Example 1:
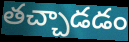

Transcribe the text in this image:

తచ్చాడడం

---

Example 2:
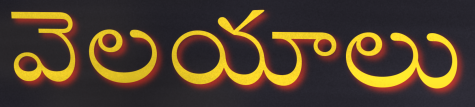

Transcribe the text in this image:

వెలయాలు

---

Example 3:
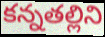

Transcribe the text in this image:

కన్నతల్లిని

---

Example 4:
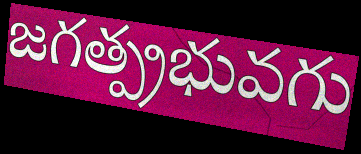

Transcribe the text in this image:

జగత్ప్రభువగు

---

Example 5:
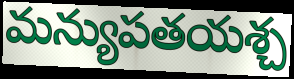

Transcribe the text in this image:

మన్యుపతయశ్చ